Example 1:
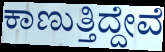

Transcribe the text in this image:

ಕಾಣುತ್ತಿದ್ದೇವೆ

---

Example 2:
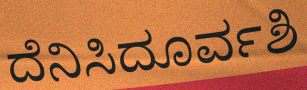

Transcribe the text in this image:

ದೆನಿಸಿದೂರ್ವಶಿ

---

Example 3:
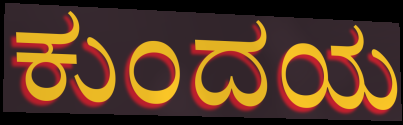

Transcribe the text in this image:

ಕುಂದಯ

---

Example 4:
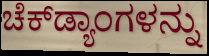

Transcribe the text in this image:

ಚೆಕ್‌ಡ್ಯಾಂಗಳನ್ನು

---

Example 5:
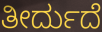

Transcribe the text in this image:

ತೀರ್ದುದೆ